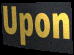
Upon